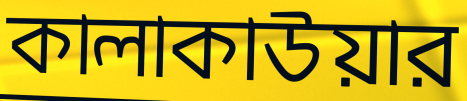
কালাকাউয়ার